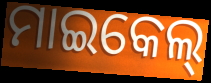
ମାଇକେଲ୍